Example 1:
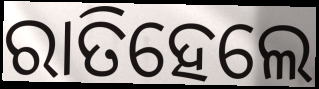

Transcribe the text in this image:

ରାତିହେଲେ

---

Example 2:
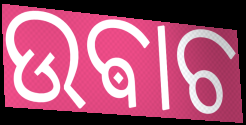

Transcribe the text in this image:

ଉଵାଚ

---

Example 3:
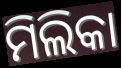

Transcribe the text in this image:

ମିଲିକା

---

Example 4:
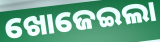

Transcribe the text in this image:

ଖୋଜେଇଲା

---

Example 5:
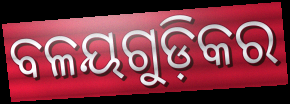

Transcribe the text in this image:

ବଳୟଗୁଡ଼ିକର